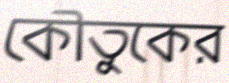
কৌতুকের